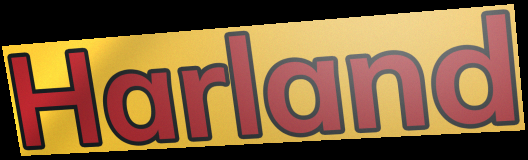
Harland